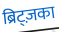
ब्रिट्ज़का